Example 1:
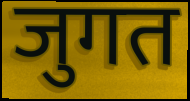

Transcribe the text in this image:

जुगत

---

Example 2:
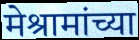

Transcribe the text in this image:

मेश्रामांच्या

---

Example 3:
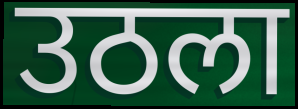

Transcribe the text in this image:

उठला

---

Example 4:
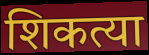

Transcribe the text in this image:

शिकत्या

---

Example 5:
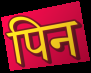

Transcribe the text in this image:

पिन